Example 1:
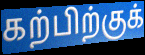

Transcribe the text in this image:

கற்பிற்குக்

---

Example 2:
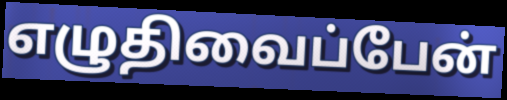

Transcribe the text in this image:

எழுதிவைப்பேன்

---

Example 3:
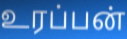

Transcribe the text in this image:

உரப்பன்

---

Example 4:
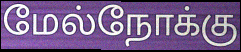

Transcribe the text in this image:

மேல்நோக்கு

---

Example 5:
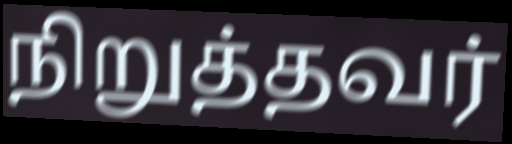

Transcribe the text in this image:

நிறுத்தவர்